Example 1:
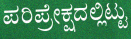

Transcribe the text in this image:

ಪರಿಪ್ರೇಕ್ಷದಲ್ಲಿಟ್ಟು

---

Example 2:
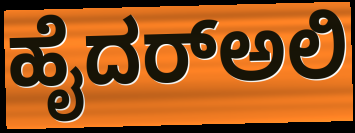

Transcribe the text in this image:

ಹೈದರ್‌ಅಲಿ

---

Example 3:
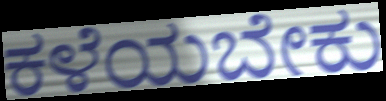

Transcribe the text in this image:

ಕಳೆಯಬೇಕು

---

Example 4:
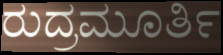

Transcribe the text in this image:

ರುದ್ರಮೂರ್ತಿ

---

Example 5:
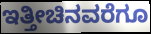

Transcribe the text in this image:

ಇತ್ತೀಚಿನವರೆಗೂ